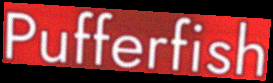
Pufferfish